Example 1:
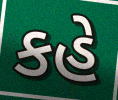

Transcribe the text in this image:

કહે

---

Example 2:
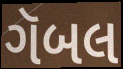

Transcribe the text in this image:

ગૅબલ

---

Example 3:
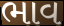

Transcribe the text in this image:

ભાવ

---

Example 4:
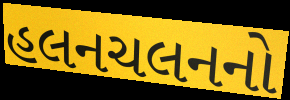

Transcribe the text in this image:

હલનચલનનો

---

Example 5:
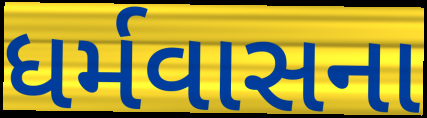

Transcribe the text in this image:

ધર્મવાસના